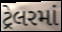
ટ્રેલરમાં